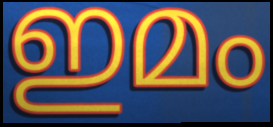
ഇമം